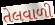
તેલવાળી